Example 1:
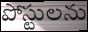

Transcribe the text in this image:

పోస్టులను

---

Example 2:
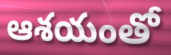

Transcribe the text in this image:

ఆశయంతో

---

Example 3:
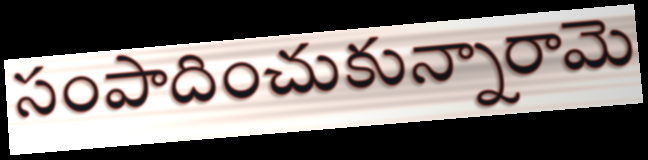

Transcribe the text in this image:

సంపాదించుకున్నారామె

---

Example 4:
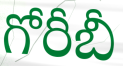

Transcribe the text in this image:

గోరీబీ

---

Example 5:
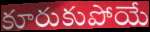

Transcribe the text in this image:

కూరుకుపోయే